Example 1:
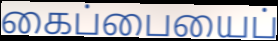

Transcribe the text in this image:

கைப்பையைப்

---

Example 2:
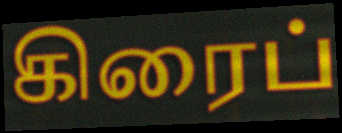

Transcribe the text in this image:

கிரைப்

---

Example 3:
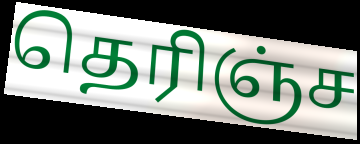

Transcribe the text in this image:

தெரிஞ்ச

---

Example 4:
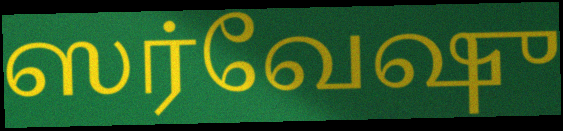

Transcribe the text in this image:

ஸர்வேஷு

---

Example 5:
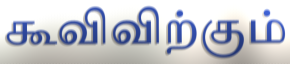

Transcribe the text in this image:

கூவிவிற்கும்